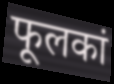
फूलकां